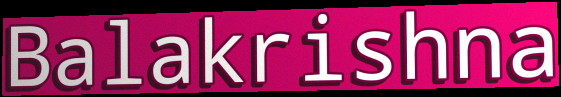
Balakrishna